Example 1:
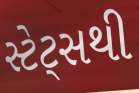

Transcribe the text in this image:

સ્ટેટ્સથી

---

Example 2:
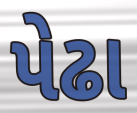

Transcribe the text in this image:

પેઢા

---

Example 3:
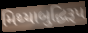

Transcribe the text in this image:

મિથ્યાબુદ્ધિરૂપ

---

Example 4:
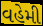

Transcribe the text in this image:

વહેમી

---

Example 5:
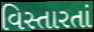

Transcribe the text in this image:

વિસ્તારતાં